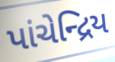
પાંચેન્દ્રિય